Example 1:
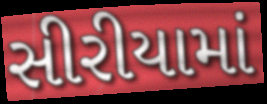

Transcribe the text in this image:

સીરીયામાં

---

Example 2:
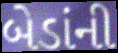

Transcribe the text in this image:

બેડાંની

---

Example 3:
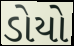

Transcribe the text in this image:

ડોયો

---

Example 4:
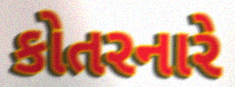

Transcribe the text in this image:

કોતરનારે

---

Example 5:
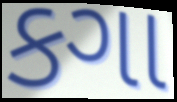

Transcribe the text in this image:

કગા